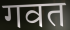
गवत